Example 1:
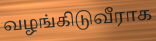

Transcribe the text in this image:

வழங்கிடுவீராக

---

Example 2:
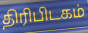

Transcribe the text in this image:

திரிபிடகம்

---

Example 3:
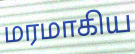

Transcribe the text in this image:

மரமாகிய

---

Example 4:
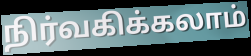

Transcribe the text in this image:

நிர்வகிக்கலாம்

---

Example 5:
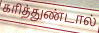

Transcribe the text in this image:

கரித்துண்டால்